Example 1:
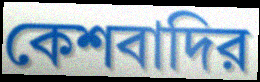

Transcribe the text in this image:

কেশবাদির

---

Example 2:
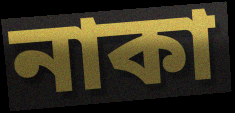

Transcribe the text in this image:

নাকা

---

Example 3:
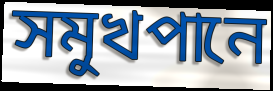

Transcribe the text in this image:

সমুখপানে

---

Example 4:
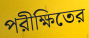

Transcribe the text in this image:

পরীক্ষিতের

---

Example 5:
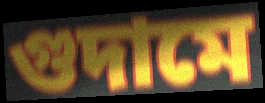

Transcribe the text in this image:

গুদামে